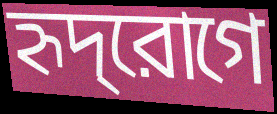
হৃদ্‌রোগে